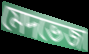
মেদভেজা